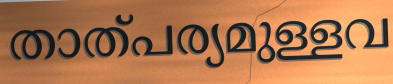
താത്പര്യമുള്ളവ